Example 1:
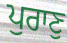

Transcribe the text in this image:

ਪੁਰਾਣੁ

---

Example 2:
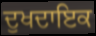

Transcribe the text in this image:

ਦੁਖਦਾਇਕ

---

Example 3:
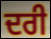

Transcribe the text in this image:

ਦਰੀ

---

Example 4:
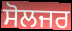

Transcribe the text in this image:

ਸੋਲਜਰ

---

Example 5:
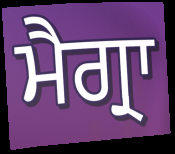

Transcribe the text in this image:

ਮੈਗ੍ਰਾ